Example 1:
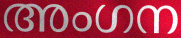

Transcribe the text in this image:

അംഗന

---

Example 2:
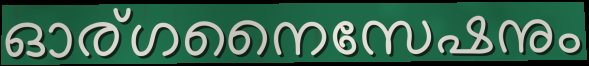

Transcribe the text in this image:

ഓര്ഗനൈസേഷനും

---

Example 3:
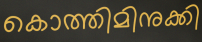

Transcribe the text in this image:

കൊത്തിമിനുക്കി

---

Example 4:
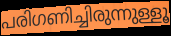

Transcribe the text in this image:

പരിഗണിച്ചിരുന്നുള്ളൂ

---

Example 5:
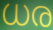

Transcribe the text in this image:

ധര